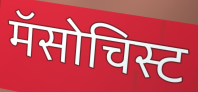
मॅसोचिस्ट